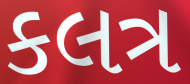
કલત્ર